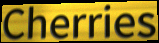
Cherries